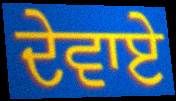
ਦੇਵਾਏ